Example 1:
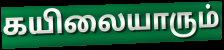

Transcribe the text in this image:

கயிலையாரும்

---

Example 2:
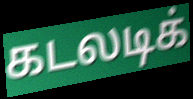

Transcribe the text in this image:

கடலடிக்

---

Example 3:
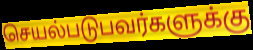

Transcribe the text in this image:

செயல்படுபவர்களுக்கு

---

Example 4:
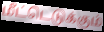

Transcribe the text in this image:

மீட்டெடுக்கும்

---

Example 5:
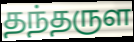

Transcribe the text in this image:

தந்தருள